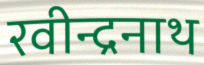
रवीन्द्रनाथ